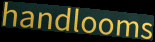
handlooms